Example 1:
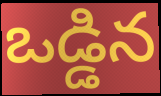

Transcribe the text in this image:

ఒడ్డిన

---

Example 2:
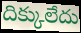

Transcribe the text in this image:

దిక్కులేదు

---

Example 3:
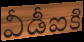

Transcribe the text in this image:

వీడీఐకి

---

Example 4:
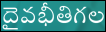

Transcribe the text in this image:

దైవభీతిగల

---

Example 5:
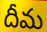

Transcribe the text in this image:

దీమ